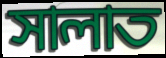
সালাত